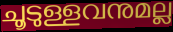
ചൂടുള്ളവനുമല്ല